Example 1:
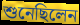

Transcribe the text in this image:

শুনেছিলেন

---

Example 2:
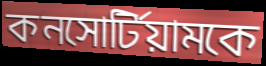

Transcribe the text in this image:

কনসোর্টিয়ামকে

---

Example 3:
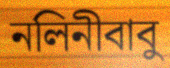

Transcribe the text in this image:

নলিনীবাবু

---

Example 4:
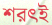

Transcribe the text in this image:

শরৎই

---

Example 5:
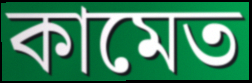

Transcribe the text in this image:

কামেত